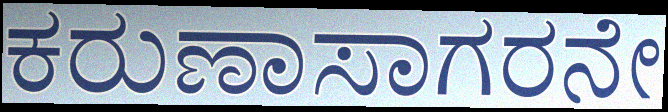
ಕರುಣಾಸಾಗರನೇ